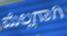
ಮೆಲ್ಲಗಾಗಿ